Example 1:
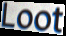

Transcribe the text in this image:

Loot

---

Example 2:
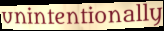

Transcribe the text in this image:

unintentionally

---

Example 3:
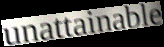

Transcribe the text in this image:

unattainable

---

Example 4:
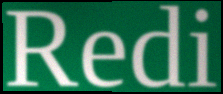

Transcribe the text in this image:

Redi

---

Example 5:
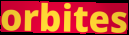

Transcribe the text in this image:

orbites